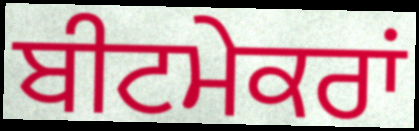
ਬੀਟਮੇਕਰਾਂ